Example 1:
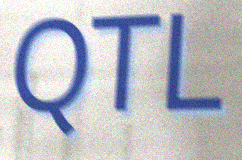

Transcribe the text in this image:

QTL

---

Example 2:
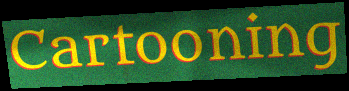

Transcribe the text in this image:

Cartooning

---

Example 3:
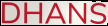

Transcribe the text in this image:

DHANS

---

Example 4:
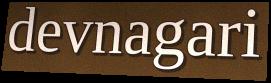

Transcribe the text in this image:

devnagari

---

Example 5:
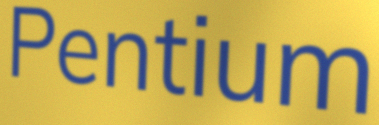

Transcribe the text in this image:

Pentium